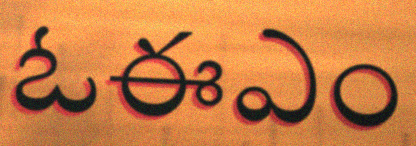
ఓఈఎం